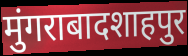
मुंगराबादशाहपुर